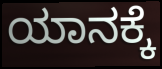
ಯಾನಕ್ಕೆ